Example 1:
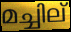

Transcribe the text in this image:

മച്ചില്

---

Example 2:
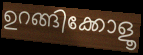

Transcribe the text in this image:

ഉറങ്ങിക്കോളൂ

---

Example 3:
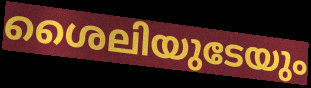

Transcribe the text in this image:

ശൈലിയുടേയും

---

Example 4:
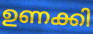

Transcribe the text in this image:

ഉണക്കി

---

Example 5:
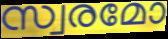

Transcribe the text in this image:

സ്വരമോ